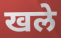
खले